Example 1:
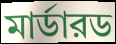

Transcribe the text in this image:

মার্ডারড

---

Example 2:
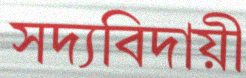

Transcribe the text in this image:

সদ্যবিদায়ী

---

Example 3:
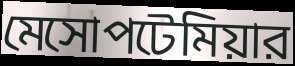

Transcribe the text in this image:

মেসোপটেমিয়ার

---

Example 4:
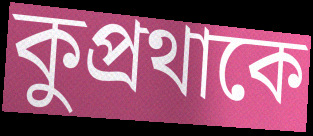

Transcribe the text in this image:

কুপ্রথাকে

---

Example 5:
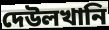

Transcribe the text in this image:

দেউলখানি